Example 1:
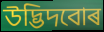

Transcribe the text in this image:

উদ্ভিদবোৰ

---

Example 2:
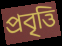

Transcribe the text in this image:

প্ৰবৃত্তি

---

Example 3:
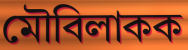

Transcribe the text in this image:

মৌবিলাকক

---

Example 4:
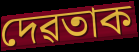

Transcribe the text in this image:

দেৱতাক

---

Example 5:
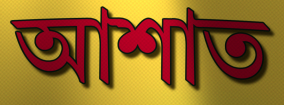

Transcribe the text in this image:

আশাত